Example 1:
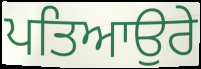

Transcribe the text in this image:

ਪਤਿਆਉਰੇ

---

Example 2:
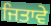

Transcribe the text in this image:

ਜਿਤਾਵੇ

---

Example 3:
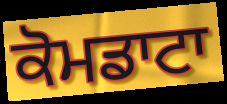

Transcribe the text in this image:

ਕੋਮਡਾਟਾ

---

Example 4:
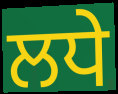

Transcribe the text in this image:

ਲਧੇ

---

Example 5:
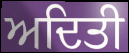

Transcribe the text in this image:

ਅਦਿਤੀ